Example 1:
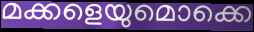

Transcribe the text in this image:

മക്കളെയുമൊക്കെ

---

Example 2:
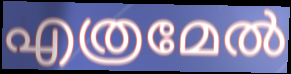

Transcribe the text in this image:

എത്രമേൽ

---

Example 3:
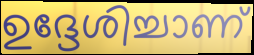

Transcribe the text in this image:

ഉദ്ദേശിച്ചാണ്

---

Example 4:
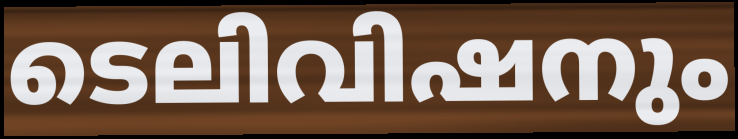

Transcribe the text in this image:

ടെലിവിഷനും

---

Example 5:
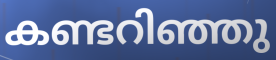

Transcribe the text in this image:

കണ്ടറിഞ്ഞു